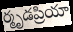
ర్మృడప్రియా